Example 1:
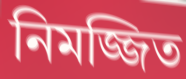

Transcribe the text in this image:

নিমজ্জিত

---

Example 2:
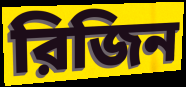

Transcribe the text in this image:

রিজিন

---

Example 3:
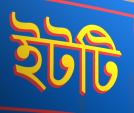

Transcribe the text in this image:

ইটটি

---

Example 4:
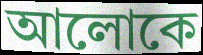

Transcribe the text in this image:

আলোকে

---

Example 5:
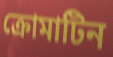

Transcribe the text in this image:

ক্রোমাটিন